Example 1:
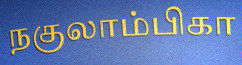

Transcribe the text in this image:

நகுலாம்பிகா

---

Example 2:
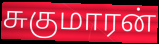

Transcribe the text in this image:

சுகுமாரன்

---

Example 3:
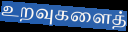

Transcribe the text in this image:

உறவுகளைத்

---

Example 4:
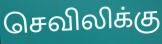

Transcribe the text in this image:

செவிலிக்கு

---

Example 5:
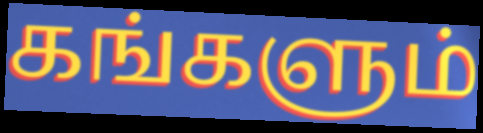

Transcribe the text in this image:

கங்களும்